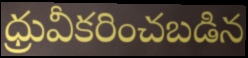
ధ్రువీకరించబడిన